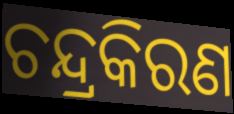
ଚନ୍ଦ୍ରକିରଣ